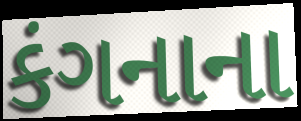
કંગનાના